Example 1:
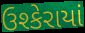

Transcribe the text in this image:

ઉશ્કેરાયાં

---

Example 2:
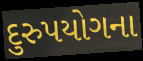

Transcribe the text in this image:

દુરુપયોગના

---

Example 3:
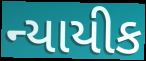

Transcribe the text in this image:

ન્યાયીક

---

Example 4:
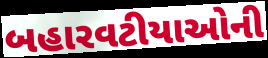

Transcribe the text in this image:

બહારવટીયાઓની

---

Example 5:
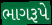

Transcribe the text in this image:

ભાગરૂપે